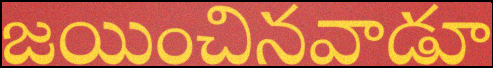
జయించినవాడూ